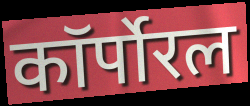
कॉर्पोरल